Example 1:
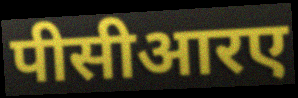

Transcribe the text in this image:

पीसीआरए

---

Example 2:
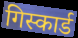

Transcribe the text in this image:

गिस्कार्ड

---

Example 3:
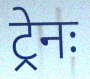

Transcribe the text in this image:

ट्रेनः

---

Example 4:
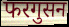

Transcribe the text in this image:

फरगुसन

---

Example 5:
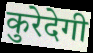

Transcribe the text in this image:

कुरेदेगी